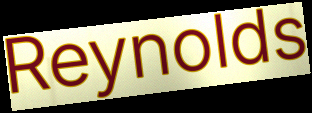
Reynolds